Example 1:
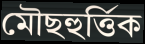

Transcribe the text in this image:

মৌছহুৰ্ত্তিক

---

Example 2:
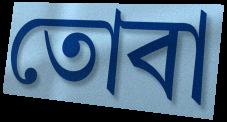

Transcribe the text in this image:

তোবা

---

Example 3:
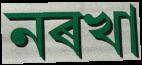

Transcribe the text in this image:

নৰখা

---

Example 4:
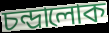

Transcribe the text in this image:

চন্দ্ৰালোক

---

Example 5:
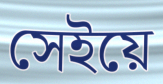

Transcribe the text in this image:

সেইয়ে